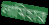
লামিহার